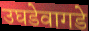
उघडेवागडे